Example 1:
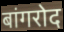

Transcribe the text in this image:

बांगरोद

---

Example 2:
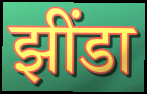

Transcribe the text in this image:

झींडा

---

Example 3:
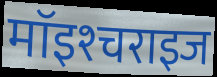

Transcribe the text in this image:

मॉइश्चराइज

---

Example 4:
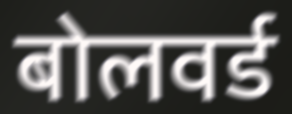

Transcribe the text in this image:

बोलवर्ड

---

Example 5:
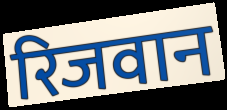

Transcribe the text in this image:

रिजवान